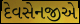
દેવસેનજીએ